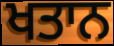
ਖਤਾਨ